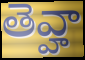
తెవ్హా